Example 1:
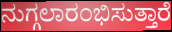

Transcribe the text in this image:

ನುಗ್ಗಲಾರಂಭಿಸುತ್ತಾರೆ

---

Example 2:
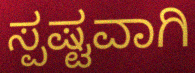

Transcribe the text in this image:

ಸ್ಪಷ್ಟವಾಗಿ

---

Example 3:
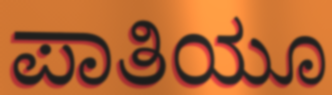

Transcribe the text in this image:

ಪಾತಿಯೂ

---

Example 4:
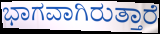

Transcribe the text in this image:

ಭಾಗವಾಗಿರುತ್ತಾರೆ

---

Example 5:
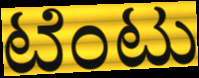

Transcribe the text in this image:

ಟೆಂಟು